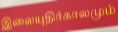
இலையுதிர்காலமும்